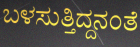
ಬಳಸುತ್ತಿದ್ದನಂತೆ